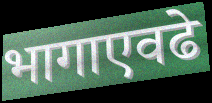
भागाएवढे